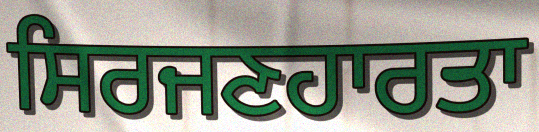
ਸਿਰਜਣਹਾਰਤਾ